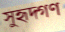
সুহৃদ্গণ